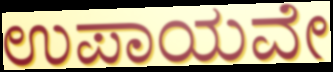
ಉಪಾಯವೇ